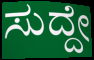
ಸುದ್ದೇ